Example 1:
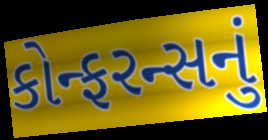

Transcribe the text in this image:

કોન્ફરન્સનું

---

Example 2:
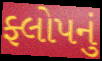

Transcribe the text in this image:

ફ્લોપનું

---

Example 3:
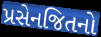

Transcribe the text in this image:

પ્રસેનજિતનો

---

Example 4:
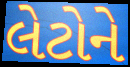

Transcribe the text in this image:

લેટોને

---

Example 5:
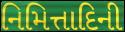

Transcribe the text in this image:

નિમિત્તાદિની